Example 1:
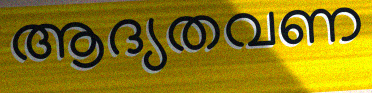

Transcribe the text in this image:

ആദ്യതവണ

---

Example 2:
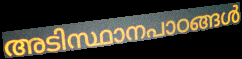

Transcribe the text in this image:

അടിസ്ഥാനപാഠങ്ങൾ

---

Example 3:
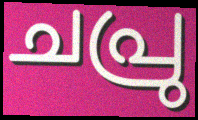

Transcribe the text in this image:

ചപ്രു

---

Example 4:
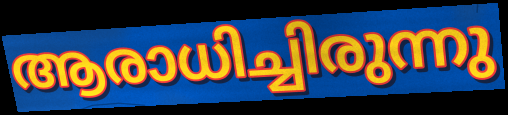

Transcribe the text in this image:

ആരാധിച്ചിരുന്നു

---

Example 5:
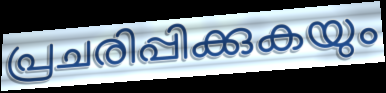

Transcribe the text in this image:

പ്രചരിപ്പിക്കുകയും